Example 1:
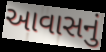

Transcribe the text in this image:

આવાસનું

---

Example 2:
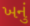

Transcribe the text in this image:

ખનું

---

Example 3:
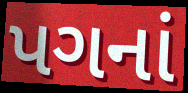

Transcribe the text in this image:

પગનાં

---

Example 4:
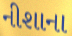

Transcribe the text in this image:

નીશાના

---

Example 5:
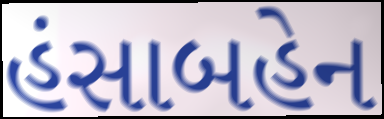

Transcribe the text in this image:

હંસાબહેન